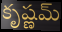
కృష్ణమ్